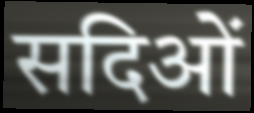
सदिओं